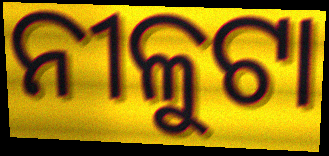
ନୀଳୁଟା